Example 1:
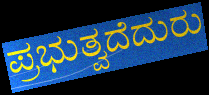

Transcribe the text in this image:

ಪ್ರಭುತ್ವದೆದುರು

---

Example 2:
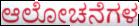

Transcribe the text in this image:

ಆಲೋಚನೆಗಳ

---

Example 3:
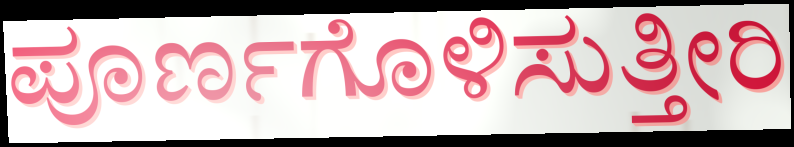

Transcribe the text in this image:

ಪೂರ್ಣಗೊಳಿಸುತ್ತೀರಿ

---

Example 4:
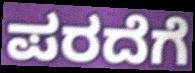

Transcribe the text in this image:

ಪರದೆಗೆ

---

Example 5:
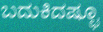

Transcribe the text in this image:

ಬದುಕಿದಷ್ಟೂ